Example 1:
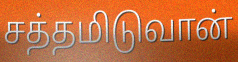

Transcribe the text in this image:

சத்தமிடுவான்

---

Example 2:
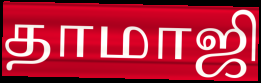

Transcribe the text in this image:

தாமாஜி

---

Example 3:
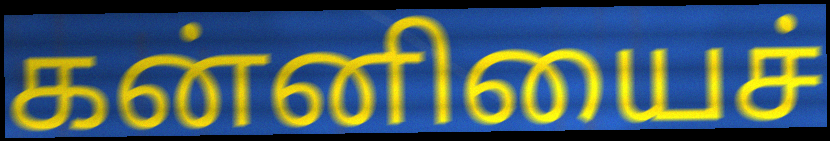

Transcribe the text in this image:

கன்னியைச்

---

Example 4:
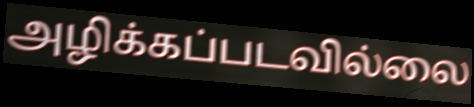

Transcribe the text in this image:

அழிக்கப்படவில்லை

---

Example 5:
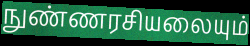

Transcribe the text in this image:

நுண்ணரசியலையும்